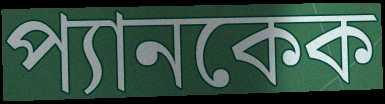
প্যানকেক